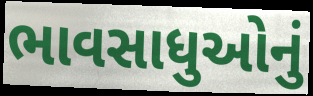
ભાવસાધુઓનું